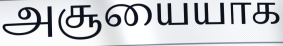
அசூயையாக